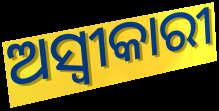
ଅସ୍ୱୀକାରୀ